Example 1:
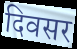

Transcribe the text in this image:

दिवसर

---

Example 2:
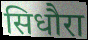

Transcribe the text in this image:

सिधौरा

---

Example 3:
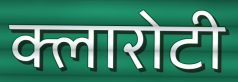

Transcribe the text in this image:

क्लारोटी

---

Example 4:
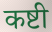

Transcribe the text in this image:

कष्टी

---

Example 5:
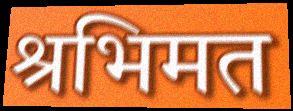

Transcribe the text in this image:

श्रभिमत